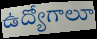
ఉద్యోగాలూ